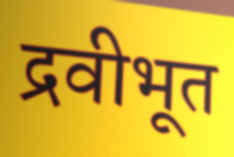
द्रवीभूत